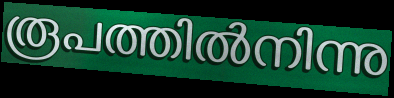
രൂപത്തിൽനിന്നു